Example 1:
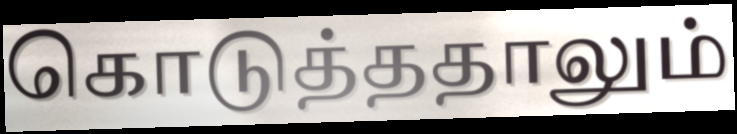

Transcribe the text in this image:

கொடுத்ததாலும்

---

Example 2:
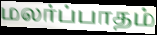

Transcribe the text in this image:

மலர்ப்பாதம்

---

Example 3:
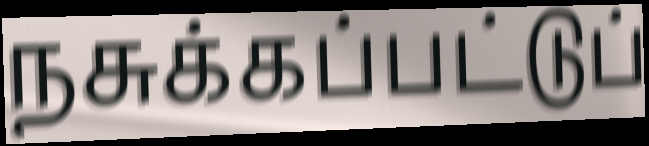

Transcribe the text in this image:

நசுக்கப்பட்டுப்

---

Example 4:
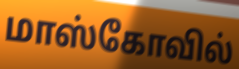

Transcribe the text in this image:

மாஸ்கோவில்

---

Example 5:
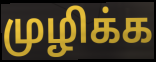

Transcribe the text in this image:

முழிக்க